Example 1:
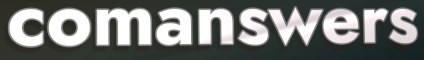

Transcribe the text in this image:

comanswers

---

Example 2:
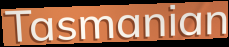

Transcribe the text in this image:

Tasmanian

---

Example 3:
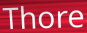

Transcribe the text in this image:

Thore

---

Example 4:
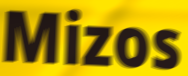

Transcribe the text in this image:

Mizos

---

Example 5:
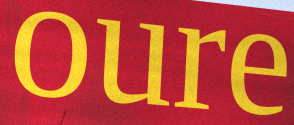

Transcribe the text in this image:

oure